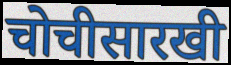
चोचीसारखी